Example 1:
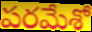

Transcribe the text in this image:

పరమేశో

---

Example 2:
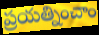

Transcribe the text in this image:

ప్రయత్నించాం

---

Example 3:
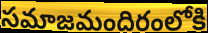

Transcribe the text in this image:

సమాజమందిరంలోకి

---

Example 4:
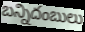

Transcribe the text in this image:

బన్నిదంబులు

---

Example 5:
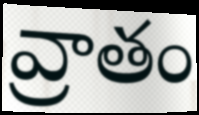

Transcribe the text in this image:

వ్రాతం